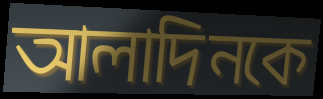
আলাদিনকে